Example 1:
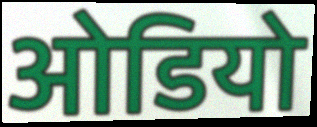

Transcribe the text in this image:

ओडियो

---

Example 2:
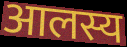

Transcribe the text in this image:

आलस्य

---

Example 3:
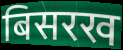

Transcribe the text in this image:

बिसरख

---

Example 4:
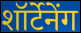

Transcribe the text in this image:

शॉर्टेनेंग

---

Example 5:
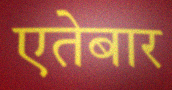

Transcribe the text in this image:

एतेबार